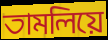
তামলিয়ে